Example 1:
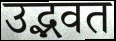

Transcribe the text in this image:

उद्भवत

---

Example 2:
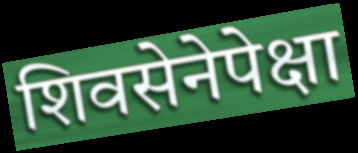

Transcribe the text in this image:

शिवसेनेपेक्षा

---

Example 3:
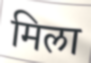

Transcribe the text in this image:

मिला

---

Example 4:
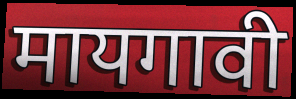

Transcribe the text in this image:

मायगावी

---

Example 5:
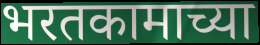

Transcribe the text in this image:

भरतकामाच्या